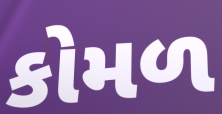
કોમળ